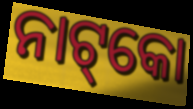
ନାଟ୍‌କୋ